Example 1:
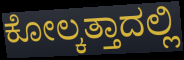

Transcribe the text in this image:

ಕೋಲ್ಕತ್ತಾದಲ್ಲಿ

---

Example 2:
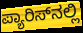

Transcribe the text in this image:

ಪ್ಯಾರಿಸ್‌ನಲ್ಲಿ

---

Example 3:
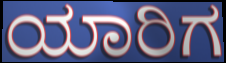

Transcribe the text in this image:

ಯಾರಿಗ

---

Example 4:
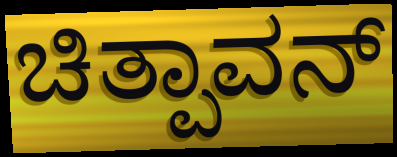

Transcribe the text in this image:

ಚಿತ್ಪಾವನ್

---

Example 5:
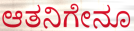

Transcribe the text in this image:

ಆತನಿಗೇನೂ